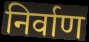
निर्वाण